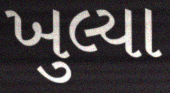
ખુલ્યા